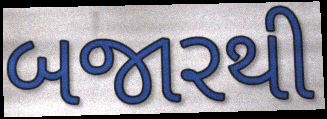
બજારથી